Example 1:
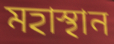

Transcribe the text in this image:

মহাস্থান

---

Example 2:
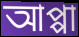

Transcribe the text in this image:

আপ্পা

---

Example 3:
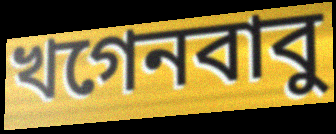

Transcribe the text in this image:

খগেনবাবু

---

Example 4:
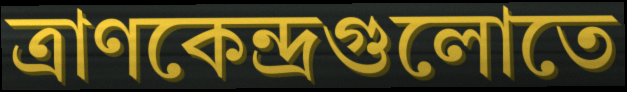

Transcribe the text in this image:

ত্রাণকেন্দ্রগুলোতে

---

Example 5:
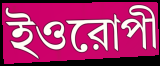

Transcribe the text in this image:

ইওরোপী